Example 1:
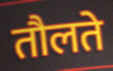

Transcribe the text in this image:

तौलते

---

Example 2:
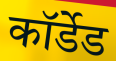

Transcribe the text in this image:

कॉर्डेड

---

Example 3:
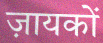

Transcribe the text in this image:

ज़ायकों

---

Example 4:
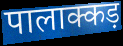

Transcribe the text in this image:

पालाक्कड़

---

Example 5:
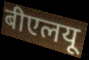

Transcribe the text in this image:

बीएलयू